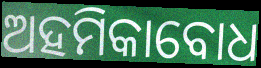
ଅହମିକାବୋଧ